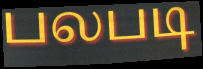
பலபடி